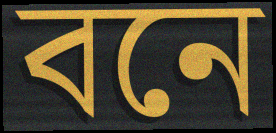
বনে